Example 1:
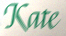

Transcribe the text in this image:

Kate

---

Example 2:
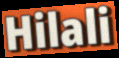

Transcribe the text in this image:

Hilali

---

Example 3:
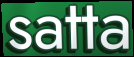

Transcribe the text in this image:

satta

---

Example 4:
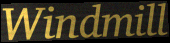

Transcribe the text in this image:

Windmill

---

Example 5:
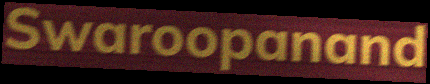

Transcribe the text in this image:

Swaroopanand